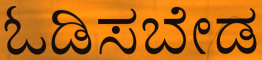
ಓಡಿಸಬೇಡ